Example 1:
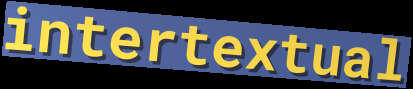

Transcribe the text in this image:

intertextual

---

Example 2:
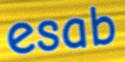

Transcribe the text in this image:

esab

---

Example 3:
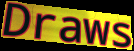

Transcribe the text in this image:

Draws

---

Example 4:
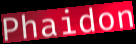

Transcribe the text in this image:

Phaidon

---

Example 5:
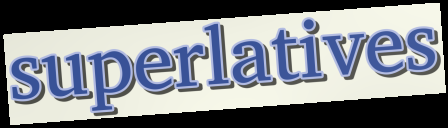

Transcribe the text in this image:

superlatives